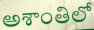
అశాంతిలో